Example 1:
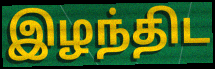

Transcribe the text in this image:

இழந்திட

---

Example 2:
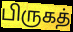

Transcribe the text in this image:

பிருகத்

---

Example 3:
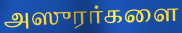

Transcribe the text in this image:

அஸுரர்களை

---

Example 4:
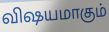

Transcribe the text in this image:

விஷயமாகும்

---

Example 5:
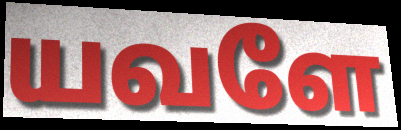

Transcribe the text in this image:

யவளே